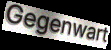
Gegenwart